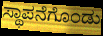
ಸ್ಥಾಪನೆಗೊಂಡು